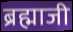
ब्रह्माजी